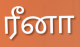
ரீனா